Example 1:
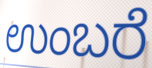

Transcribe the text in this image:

ಉಂಬರೆ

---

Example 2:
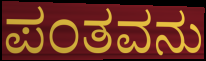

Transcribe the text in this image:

ಪಂತವನು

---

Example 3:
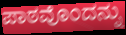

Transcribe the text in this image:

ಪಾಠವೊಂದನ್ನು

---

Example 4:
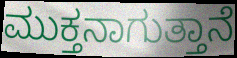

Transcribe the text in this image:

ಮುಕ್ತನಾಗುತ್ತಾನೆ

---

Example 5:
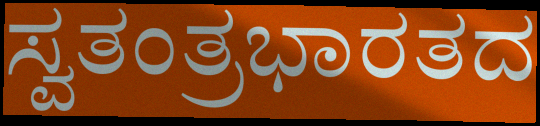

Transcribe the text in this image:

ಸ್ವತಂತ್ರಭಾರತದ